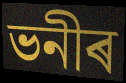
ভনীৰ